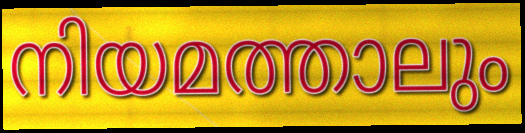
നിയമത്താലും